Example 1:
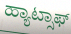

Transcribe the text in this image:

ಹ್ಯಾಟ್ಸಾಫ್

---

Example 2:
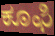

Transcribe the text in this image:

ಕೂಫಿ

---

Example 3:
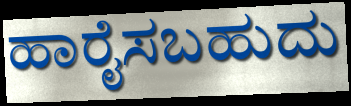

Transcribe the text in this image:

ಹಾರೈಸಬಹುದು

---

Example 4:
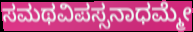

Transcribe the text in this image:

ಸಮಥವಿಪಸ್ಸನಾಧಮ್ಮೇ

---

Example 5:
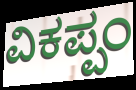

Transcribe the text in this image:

ವಿಕಪ್ಪಂ